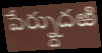
పేర్న్దుదఱి